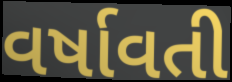
વર્ષાવતી